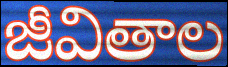
జీవితాల